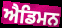
ਐਡਿਮਨ